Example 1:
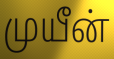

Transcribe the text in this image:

முயீன்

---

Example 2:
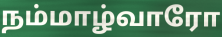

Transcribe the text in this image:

நம்மாழ்வாரோ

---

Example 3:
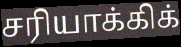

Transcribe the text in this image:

சரியாக்கிக்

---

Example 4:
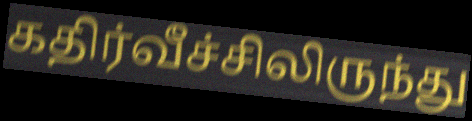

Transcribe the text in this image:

கதிர்வீச்சிலிருந்து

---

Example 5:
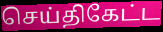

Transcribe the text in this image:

செய்திகேட்ட